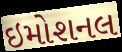
ઇમોશનલ